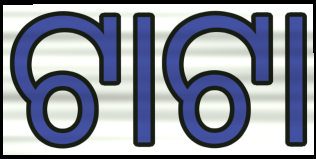
ଟାଟା